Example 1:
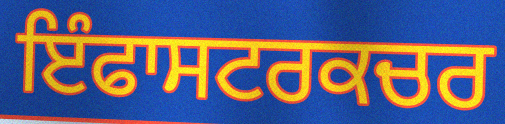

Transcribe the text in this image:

ਇੰਫਾਸਟਰਕਚਰ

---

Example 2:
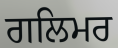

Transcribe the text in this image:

ਗਲਿਮਰ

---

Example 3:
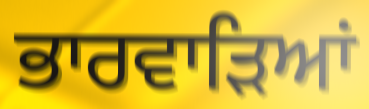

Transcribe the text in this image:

ਭਾਰਵਾੜਿਆਂ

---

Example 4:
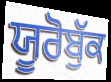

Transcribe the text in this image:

ਯੂਰੋਬੁੱਕ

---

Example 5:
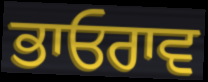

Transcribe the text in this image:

ਭਾਓਰਾਵ